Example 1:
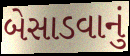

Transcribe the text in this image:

બેસાડવાનું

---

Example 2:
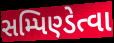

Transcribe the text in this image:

સમ્પિણ્ડેત્વા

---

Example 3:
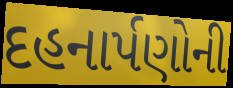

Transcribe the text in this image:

દહનાર્પણોની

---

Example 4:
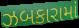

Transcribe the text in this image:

ઝબકારામાં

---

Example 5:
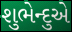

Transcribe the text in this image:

શુભેન્દુએ